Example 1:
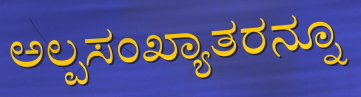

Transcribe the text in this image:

ಅಲ್ಪಸಂಖ್ಯಾತರನ್ನೂ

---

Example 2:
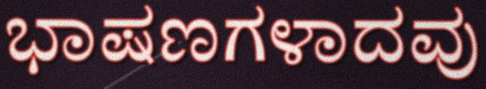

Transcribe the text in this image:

ಭಾಷಣಗಳಾದವು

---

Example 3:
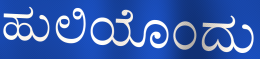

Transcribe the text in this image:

ಹುಲಿಯೊಂದು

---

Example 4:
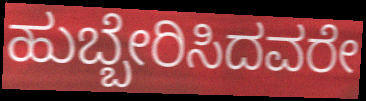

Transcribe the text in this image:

ಹುಬ್ಬೇರಿಸಿದವರೇ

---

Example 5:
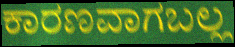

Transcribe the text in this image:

ಕಾರಣವಾಗಬಲ್ಲ